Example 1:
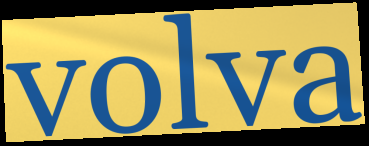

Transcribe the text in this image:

volva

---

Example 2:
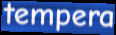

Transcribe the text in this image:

tempera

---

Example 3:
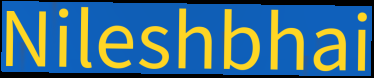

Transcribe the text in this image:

Nileshbhai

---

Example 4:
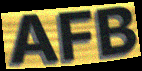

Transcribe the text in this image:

AFB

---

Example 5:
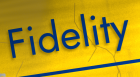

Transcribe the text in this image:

Fidelity